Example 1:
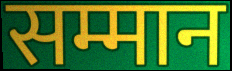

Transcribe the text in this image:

सम्‍मान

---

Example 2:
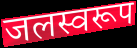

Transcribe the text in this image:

जलस्वरूप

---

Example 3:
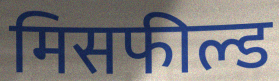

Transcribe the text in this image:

मिसफील्ड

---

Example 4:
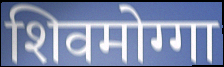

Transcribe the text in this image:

शिवमोग्गा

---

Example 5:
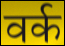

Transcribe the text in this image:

वर्क